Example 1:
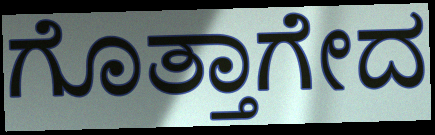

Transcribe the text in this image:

ಗೊತ್ತಾಗೇದ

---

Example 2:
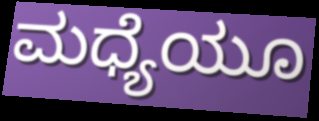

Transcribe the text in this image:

ಮಧ್ಯೆಯೂ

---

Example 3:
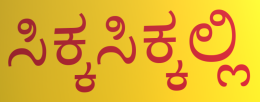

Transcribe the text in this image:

ಸಿಕ್ಕಸಿಕ್ಕಲ್ಲಿ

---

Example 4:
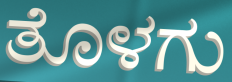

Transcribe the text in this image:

ತೊಳಗು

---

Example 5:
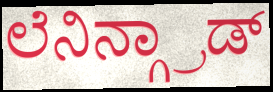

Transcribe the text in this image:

ಲೆನಿನ್ಗ್ರಾಡ್